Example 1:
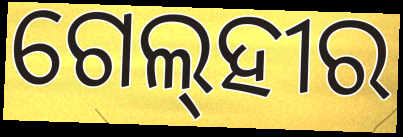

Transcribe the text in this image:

ଗେଲ୍‌ହୀର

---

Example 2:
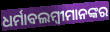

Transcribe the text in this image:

ଧର୍ମାବଲମ୍ବୀମାନଙ୍କର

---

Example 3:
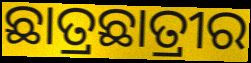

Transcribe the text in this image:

ଛାତ୍ରଛାତ୍ରୀର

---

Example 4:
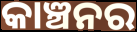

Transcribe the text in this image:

କାଞ୍ଚନର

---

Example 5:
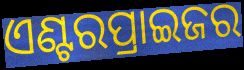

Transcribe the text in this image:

ଏଣ୍ଟରପ୍ରାଇଜର